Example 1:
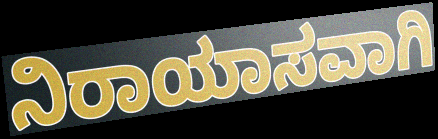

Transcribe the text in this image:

ನಿರಾಯಾಸವಾಗಿ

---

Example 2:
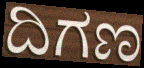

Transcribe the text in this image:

ದಿಗಣ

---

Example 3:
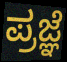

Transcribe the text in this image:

ಪ್ರಜ್ಞೆ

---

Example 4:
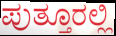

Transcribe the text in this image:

ಪುತ್ತೂರಲ್ಲಿ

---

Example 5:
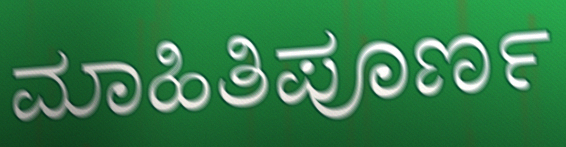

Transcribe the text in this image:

ಮಾಹಿತಿಪೂರ್ಣ